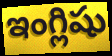
ఇంగ్లిషు